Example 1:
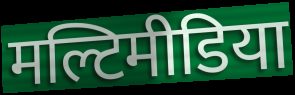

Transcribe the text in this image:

मल्टिमीडिया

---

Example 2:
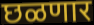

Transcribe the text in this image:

छळणार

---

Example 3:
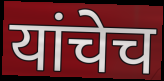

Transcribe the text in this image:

यांचेच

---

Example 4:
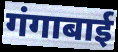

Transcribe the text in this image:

गंगाबाई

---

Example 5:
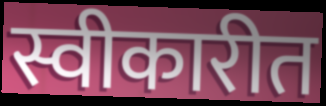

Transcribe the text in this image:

स्वीकारीत